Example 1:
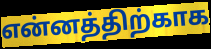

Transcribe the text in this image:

என்னத்திற்காக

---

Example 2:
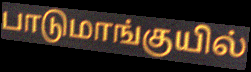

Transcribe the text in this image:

பாடுமாங்குயில்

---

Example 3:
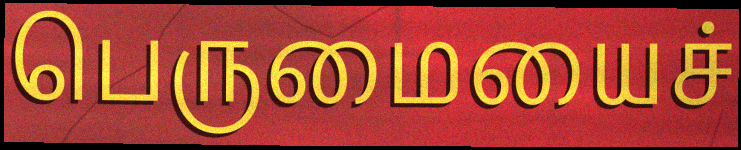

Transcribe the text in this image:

பெருமையைச்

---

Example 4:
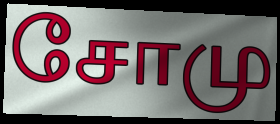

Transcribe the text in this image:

சோமு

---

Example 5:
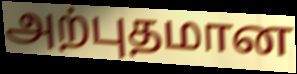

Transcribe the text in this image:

அற்புதமான